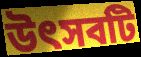
উৎসবটি